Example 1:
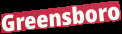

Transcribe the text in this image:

Greensboro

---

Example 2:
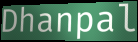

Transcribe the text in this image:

Dhanpal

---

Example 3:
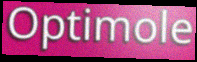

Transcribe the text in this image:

Optimole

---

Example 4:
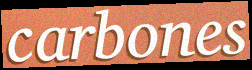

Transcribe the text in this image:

carbones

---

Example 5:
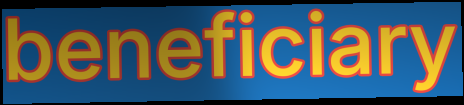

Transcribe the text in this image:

beneficiary